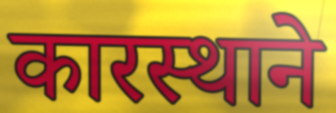
कारस्थाने